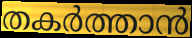
തകർത്താൻ